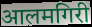
आलमगिरी